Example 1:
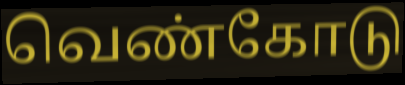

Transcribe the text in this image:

வெண்கோடு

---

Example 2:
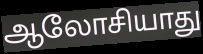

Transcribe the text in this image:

ஆலோசியாது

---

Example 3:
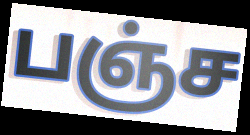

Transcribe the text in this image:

பஞ்ச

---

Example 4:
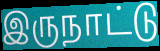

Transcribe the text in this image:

இருநாட்டு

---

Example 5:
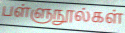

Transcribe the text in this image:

பள்ளுநூல்கள்